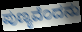
ಪುಣ್ಯವೆಂದನು